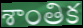
శాంతిక